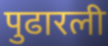
पुढारली